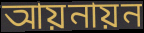
আয়নায়ন